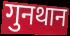
गुनथान